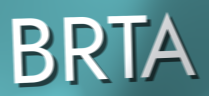
BRTA